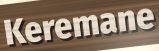
Keremane